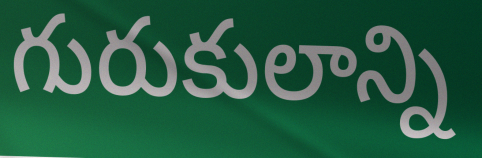
గురుకులాన్ని